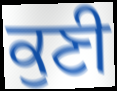
ਕੁਣੀ